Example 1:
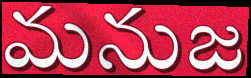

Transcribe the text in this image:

మనుజ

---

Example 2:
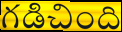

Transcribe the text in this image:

గడిచింది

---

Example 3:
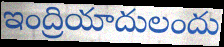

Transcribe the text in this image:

ఇంద్రియాదులందు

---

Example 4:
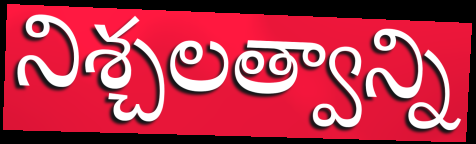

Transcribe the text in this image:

నిశ్చలత్వాన్ని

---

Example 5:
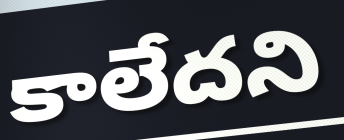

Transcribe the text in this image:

కాలేదని